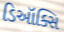
ડિઑક્સિ